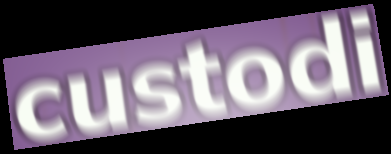
custodi